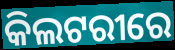
କିଲଟରୀରେ